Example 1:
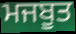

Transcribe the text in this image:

ਮਜਬੂਤ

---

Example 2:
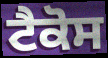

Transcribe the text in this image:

ਟੈਕੋਸ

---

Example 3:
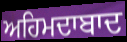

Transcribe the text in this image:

ਅਹਿਮਦਾਬਾਦ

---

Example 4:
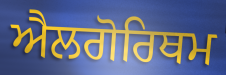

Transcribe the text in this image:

ਐਲਗੋਰਿਥਮ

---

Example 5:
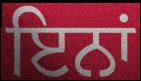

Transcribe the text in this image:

ਇਨਾਂ